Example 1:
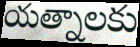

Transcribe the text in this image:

యత్నాలకు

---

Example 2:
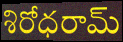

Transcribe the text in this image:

శిరోధరామ్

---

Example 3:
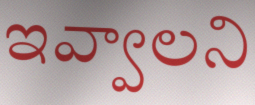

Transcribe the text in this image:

ఇవ్వాలని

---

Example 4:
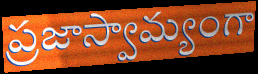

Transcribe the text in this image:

ప్రజాస్వామ్యంగా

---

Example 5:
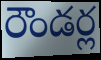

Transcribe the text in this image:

రౌండర్ల